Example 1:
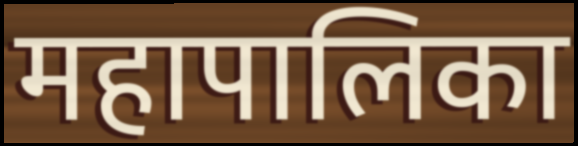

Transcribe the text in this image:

महापालिका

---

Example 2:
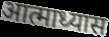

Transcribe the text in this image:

आत्माध्यास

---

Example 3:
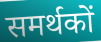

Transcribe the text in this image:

समर्थकों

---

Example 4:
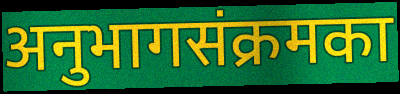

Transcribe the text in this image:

अनुभागसंक्रमका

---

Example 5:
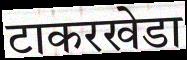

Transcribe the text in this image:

टाकरखेडा